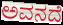
ಅವನದೆ